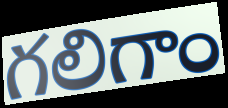
గలిగాం